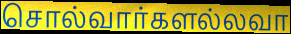
சொல்வார்களல்லவா